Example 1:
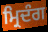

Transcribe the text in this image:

ਮ੍ਰਿਦੰਗ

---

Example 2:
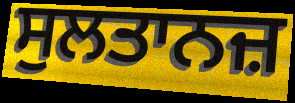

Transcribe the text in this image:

ਸੁਲਤਾਨਜ਼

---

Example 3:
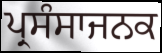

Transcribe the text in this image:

ਪ੍ਰਸੰਸਾਜਨਕ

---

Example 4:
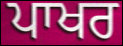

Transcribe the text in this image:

ਪਾਖਰ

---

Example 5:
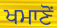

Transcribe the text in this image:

ਖਮਾਣੋਂ